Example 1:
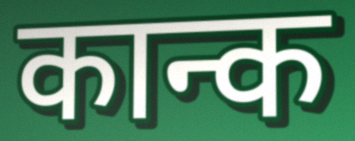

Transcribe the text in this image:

कान्क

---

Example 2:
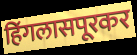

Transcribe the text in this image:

हिंगलासपूरकर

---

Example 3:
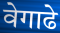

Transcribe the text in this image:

वेगाढे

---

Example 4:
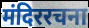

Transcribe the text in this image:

मंदिररचना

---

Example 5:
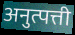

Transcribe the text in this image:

अनुत्पत्ती